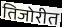
तिजोरीत